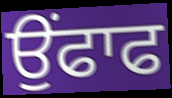
ਉੰਫਾਫ